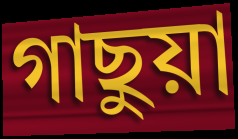
গাছুয়া